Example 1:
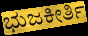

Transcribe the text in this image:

ಭುಜಕೀರ್ತಿ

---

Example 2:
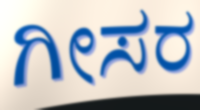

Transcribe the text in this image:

ಗೀಸರ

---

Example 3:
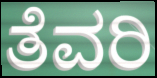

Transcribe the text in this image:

ತೆವರಿ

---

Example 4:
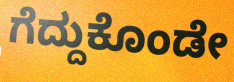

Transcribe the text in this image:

ಗೆದ್ದುಕೊಂಡೇ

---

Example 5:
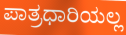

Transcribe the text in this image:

ಪಾತ್ರಧಾರಿಯಲ್ಲ